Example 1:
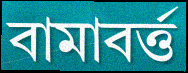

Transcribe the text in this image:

বামাবর্ত্ত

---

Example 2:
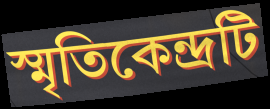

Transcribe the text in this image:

স্মৃতিকেন্দ্রটি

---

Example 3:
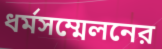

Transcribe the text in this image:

ধর্মসম্মেলনের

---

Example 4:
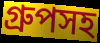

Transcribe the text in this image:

গ্রুপসহ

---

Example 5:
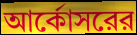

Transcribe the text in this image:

আর্কোসরের